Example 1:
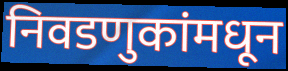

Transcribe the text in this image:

निवडणुकांमधून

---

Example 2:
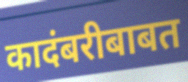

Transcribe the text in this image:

कादंबरीबाबत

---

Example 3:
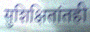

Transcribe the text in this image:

सुशिक्षितांतही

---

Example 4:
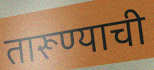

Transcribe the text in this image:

तारूण्याची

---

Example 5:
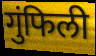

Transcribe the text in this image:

गुंफिली